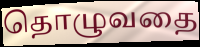
தொழுவதை